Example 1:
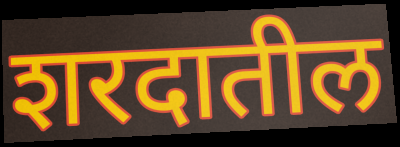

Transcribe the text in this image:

शरदातील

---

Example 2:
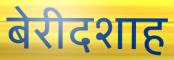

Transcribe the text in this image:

बेरीदशाह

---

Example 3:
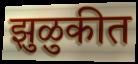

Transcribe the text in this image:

झुळुकीत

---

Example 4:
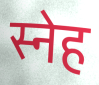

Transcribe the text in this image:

स्नेह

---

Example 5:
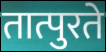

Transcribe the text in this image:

तात्पुरते